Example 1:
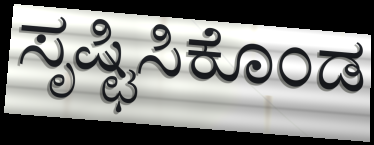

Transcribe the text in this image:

ಸೃಷ್ಟಿಸಿಕೊಂಡ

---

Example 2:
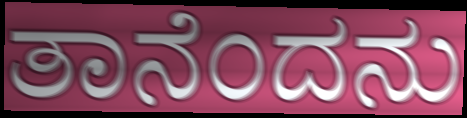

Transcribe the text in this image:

ತಾನೆಂದನು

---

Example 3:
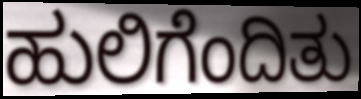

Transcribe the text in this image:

ಹುಲಿಗೆಂದಿತು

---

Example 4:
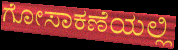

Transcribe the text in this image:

ಗೋಸಾಕಣೆಯಲ್ಲಿ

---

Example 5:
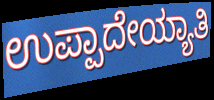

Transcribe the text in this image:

ಉಪ್ಪಾದೇಯ್ಯಾತಿ